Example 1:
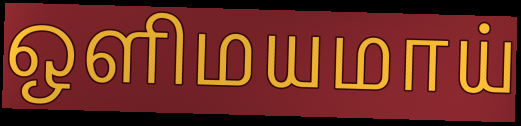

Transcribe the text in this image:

ஒளிமயமாய்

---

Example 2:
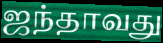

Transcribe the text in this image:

ஜந்தாவது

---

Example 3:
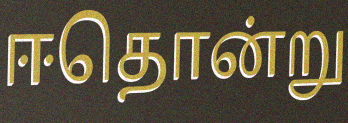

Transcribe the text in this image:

ஈதொன்று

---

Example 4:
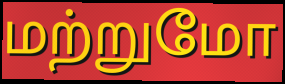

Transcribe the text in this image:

மற்றுமோ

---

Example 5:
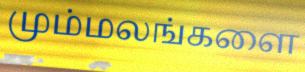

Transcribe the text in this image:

மும்மலங்களை